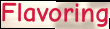
Flavoring